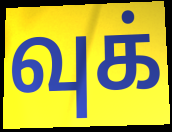
வுக்